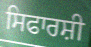
ਸਿਫਾਰਸ਼ੀ